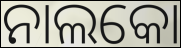
ନାଲକୋ